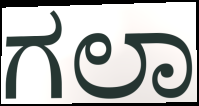
ಗಲಾ